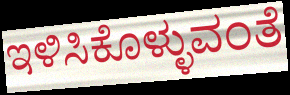
ಇಳಿಸಿಕೊಳ್ಳುವಂತೆ